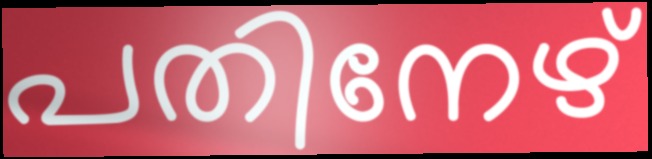
പതിനേഴ്